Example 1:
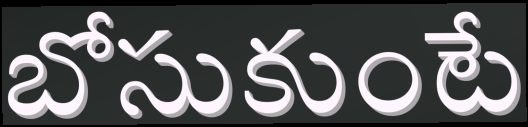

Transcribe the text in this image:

బోసుకుంటే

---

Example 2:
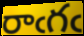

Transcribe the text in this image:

రాఁగఁ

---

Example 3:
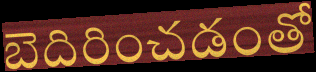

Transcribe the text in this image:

బెదిరించడంతో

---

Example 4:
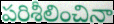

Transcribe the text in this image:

పరిశీలించినా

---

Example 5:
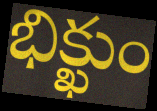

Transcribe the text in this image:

భిక్ఖుం